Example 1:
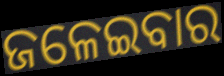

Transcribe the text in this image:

ଜଳେଇବାର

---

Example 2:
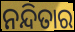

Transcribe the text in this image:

ନନ୍ଦିତାର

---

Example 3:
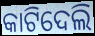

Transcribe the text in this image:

କାଟିଦେଲି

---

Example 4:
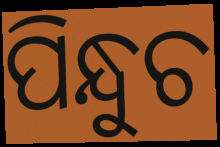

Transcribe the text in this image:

ପିନ୍ଧୁଚ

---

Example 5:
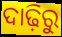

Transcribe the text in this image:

ଦାଢ଼ିରୁ